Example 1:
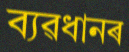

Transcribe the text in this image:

ব্যৱধানৰ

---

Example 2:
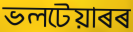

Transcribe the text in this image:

ভলটেয়াৰৰ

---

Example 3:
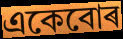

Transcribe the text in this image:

একেবোৰ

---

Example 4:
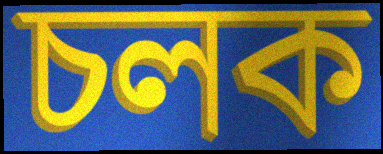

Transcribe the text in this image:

চলক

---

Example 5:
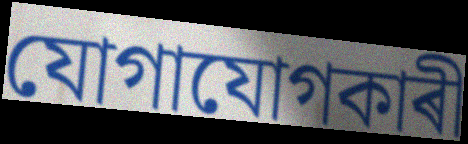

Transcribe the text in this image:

যোগাযোগকাৰী